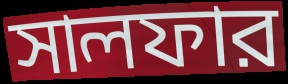
সালফার